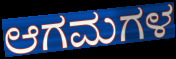
ಆಗಮಗಳ